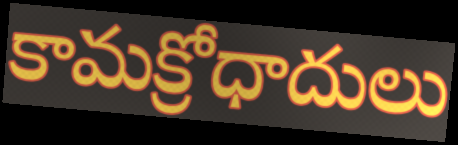
కామక్రోధాదులు